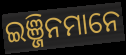
ଇଞ୍ଜିନମାନେ